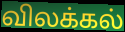
விலக்கல்